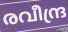
രവീന്ദ്ര